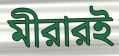
মীরারই